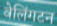
वेलिंगटन